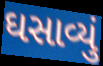
ઘસાવ્યું